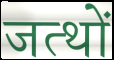
जत्थों